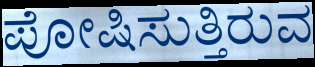
ಪೋಷಿಸುತ್ತಿರುವ